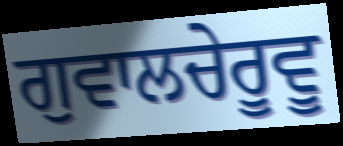
ਗੁਵਾਲਚੇਰੂਵੂ